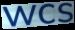
wcs